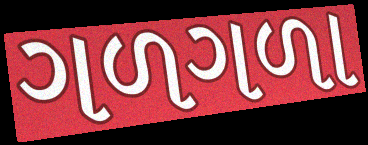
ગળગળા